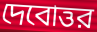
দেবোত্তর